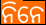
ନିନେ